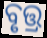
ବୃତ୍ତ୍ର